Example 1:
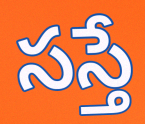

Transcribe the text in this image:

సస్తే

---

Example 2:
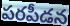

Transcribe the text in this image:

పరపీడన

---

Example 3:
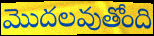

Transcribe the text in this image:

మొదలవుతోంది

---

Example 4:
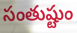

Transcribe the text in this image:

సంతుష్టుం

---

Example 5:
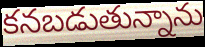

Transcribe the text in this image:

కనబడుతున్నాను